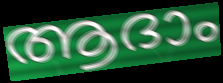
ആദാം